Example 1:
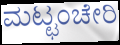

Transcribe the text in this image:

ಮಟ್ಟಂಚೇರಿ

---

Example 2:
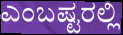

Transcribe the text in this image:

ಎಂಬಷ್ಟರಲ್ಲಿ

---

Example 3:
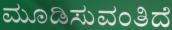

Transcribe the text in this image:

ಮೂಡಿಸುವಂತಿದೆ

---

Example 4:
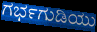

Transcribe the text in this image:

ಗರ್ಭಗುಡಿಯು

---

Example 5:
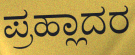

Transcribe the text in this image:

ಪ್ರಹ್ಲಾದರ